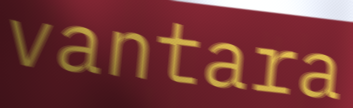
vantara